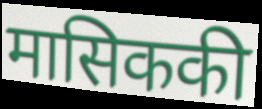
मासिककी